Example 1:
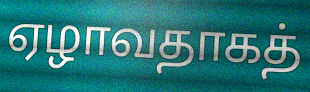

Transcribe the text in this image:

ஏழாவதாகத்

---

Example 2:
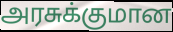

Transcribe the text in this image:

அரசுக்குமான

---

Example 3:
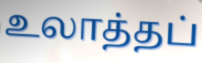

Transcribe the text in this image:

உலாத்தப்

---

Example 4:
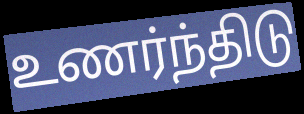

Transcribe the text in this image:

உணர்ந்திடு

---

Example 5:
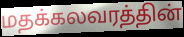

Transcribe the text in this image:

மதக்கலவரத்தின்